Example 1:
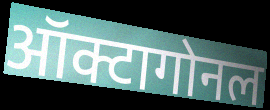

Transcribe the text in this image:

ऑक्टागोनल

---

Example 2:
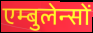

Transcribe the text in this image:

एम्बुलेन्सों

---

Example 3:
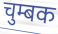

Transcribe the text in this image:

चुम्बक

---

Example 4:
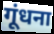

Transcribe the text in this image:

गूंधना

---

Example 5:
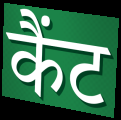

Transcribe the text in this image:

कैंट